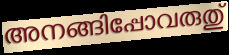
അനങ്ങിപ്പോവരുതു്